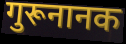
गुरूनानक